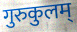
गुरुकुलम्